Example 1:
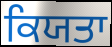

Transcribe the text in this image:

ਕਿਯਤਾ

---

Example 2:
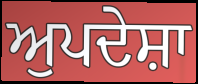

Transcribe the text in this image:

ਅੁਪਦੇਸ਼ਾ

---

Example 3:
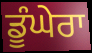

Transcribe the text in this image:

ਡੂੰਘੇਰਾ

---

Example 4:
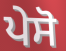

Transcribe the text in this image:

ਪੇਸੋ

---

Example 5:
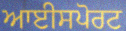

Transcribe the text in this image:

ਆਈਸਪੋਰਟ